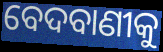
ବେଦବାଣୀକୁ